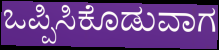
ಒಪ್ಪಿಸಿಕೊಡುವಾಗ